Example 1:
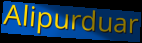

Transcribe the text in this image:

Alipurduar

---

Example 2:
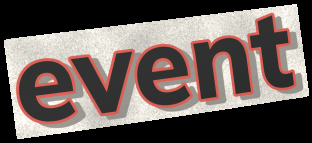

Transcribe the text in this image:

event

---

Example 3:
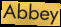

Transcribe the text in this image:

Abbey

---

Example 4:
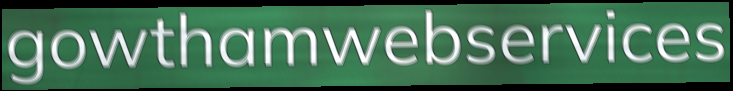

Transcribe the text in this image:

gowthamwebservices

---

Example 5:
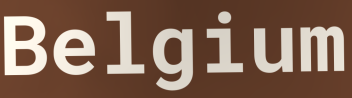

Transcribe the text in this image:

Belgium